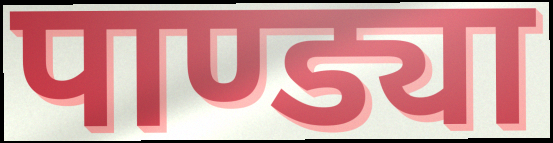
पाण्ड्या